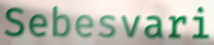
Sebesvari